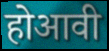
होआवी